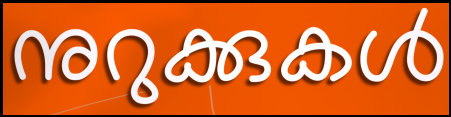
നുറുക്കുകൾ